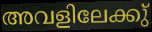
അവളിലേക്കു്